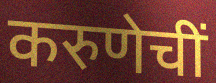
करुणेचीं